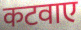
कटवाए